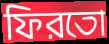
ফিরতো